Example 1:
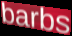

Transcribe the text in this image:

barbs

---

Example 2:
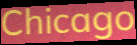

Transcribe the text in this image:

Chicago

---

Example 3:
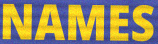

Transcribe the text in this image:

NAMES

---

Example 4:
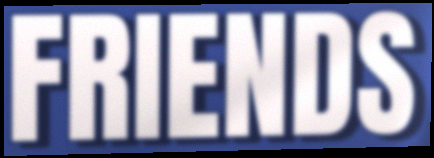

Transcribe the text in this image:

FRIENDS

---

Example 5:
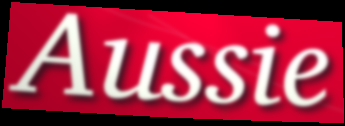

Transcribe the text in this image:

Aussie